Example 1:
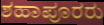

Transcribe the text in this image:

ಶಹಾಪೂರರು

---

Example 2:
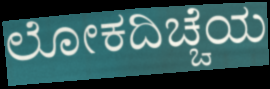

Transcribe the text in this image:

ಲೋಕದಿಚ್ಚೆಯ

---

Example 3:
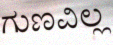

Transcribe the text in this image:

ಗುಣವಿಲ್ಲ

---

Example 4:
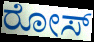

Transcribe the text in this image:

ರೋಸ್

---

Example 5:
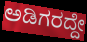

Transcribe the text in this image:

ಅಡಿಗರದ್ದೇ